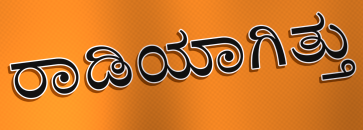
ರಾಡಿಯಾಗಿತ್ತು